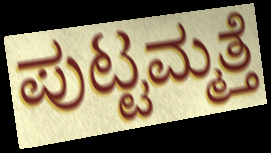
ಪುಟ್ಟಮ್ಮತ್ತೆ